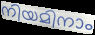
നിയമിനാം